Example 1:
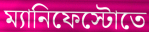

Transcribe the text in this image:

ম্যানিফেস্টোতে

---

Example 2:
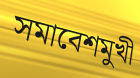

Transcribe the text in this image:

সমাবেশমুখী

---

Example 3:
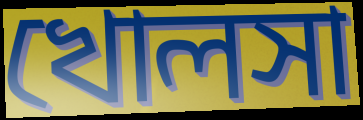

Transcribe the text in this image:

খোলসা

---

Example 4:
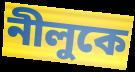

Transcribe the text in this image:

নীলুকে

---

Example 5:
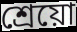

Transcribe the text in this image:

শ্রেয়ো